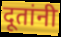
दूतांनी